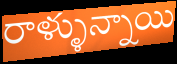
రాళ్ళున్నాయి